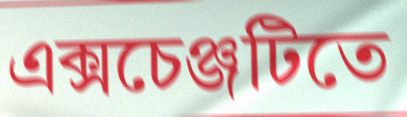
এক্সচেঞ্জটিতে